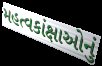
મહત્વકાંક્ષાઓનું